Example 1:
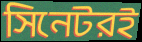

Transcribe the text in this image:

সিনেটরই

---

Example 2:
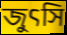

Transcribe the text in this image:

জুৎসি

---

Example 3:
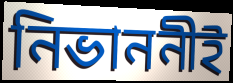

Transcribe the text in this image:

নিভাননীই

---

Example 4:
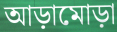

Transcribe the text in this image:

আড়ামোড়া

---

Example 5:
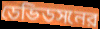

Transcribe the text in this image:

ডেভিডসনের